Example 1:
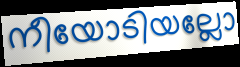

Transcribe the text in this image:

നീയോടിയല്ലോ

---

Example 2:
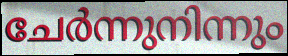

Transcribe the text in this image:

ചേർന്നുനിന്നും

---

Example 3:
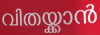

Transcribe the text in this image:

വിതയ്ക്കാൻ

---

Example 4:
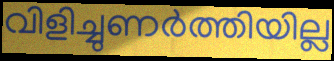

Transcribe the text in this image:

വിളിച്ചുണർത്തിയില്ല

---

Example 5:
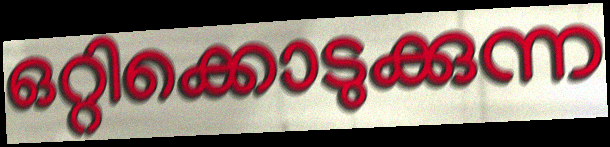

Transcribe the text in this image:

ഒറ്റിക്കൊടുക്കുന്ന